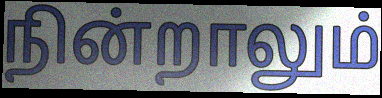
நின்றாலும்